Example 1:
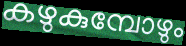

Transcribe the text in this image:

കഴുകുമ്പോഴും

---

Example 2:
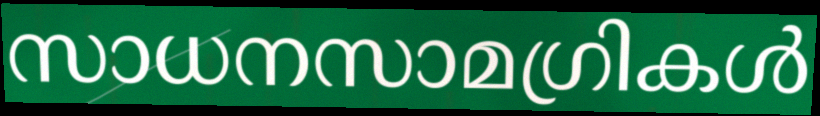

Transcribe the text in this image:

സാധനസാമഗ്രികൾ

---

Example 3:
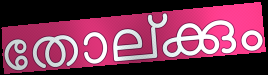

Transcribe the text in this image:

തോല്ക്കും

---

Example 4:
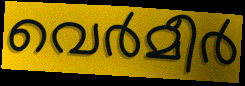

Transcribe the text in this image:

വെർമീർ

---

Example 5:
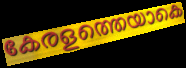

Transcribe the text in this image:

കേരളത്തെയാകെ